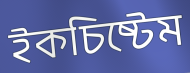
ইকচিষ্টেম